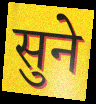
सुने